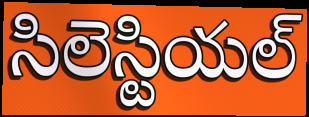
సిలెస్టియల్